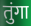
तुंगा